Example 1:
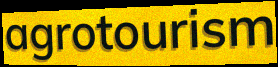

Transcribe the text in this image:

agrotourism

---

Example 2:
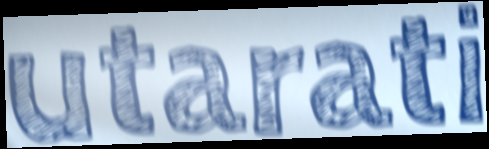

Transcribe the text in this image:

utarati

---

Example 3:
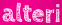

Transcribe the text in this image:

alteri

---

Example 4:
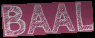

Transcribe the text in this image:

BAAL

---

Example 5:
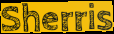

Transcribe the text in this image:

Sherris